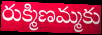
రుక్మిణమ్మకు